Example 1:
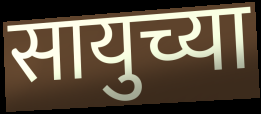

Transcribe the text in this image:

सायुच्या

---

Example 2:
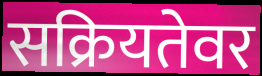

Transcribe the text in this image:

सक्रियतेवर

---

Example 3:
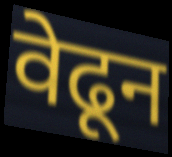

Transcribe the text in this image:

वेढून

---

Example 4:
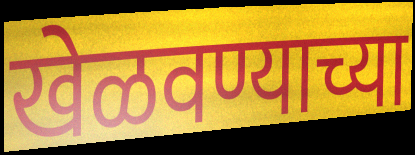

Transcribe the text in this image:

खेळवण्याच्या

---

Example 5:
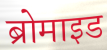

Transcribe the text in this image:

ब्रोमाइड